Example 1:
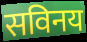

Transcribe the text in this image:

सविनय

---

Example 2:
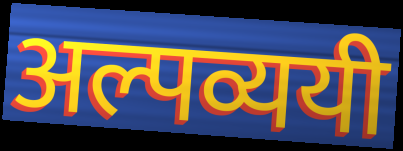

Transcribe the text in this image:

अल्पव्ययी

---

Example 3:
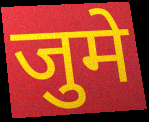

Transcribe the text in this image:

जुमे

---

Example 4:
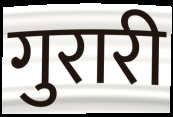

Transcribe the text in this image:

गुरारी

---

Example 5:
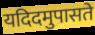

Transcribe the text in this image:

यदिदमुपासते